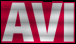
AVI